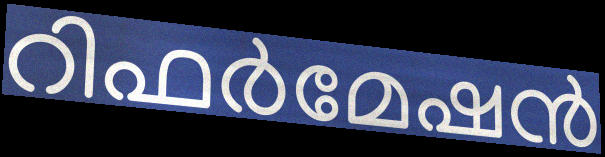
റിഫർമേഷൻ